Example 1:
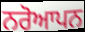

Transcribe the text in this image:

ਨਰੋਆਪਨ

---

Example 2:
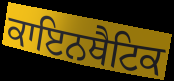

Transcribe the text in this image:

ਕਾਇਨਥੈਟਿਕ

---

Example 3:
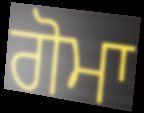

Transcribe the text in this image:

ਗੋਮਾ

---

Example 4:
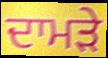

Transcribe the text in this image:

ਦਾਮੜੇ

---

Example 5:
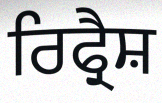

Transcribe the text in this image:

ਰਿਫ੍ਰੈਸ਼